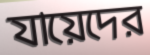
যায়েদের